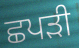
ਛਪੜੀ